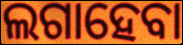
ଲଗାହେବା